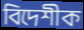
বিদেশীক